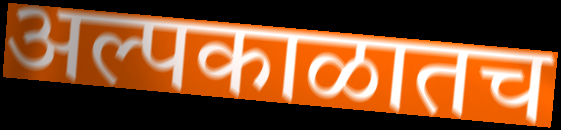
अल्पकाळातच